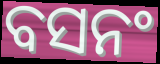
ବସନଂ